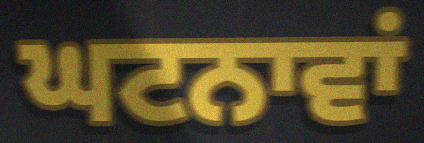
ਘਟਨਾਵਾਂ